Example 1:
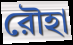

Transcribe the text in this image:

রৌহা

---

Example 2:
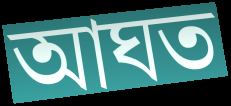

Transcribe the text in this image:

আঘত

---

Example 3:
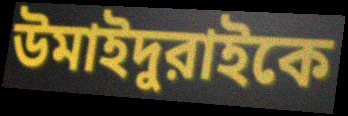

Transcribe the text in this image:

উমাইদুরাইকে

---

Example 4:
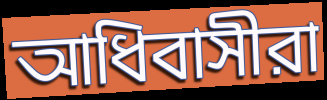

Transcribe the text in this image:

আধিবাসীরা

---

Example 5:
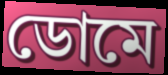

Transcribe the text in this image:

ডোমে